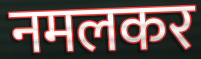
नमलकर